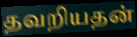
தவறியதன்